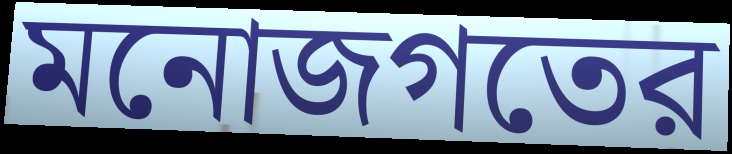
মনোজগতের